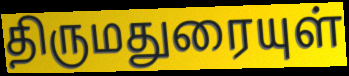
திருமதுரையுள்